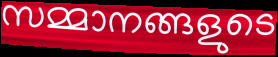
സമ്മാനങ്ങളുടെ